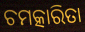
ଚମତ୍କାରିତା